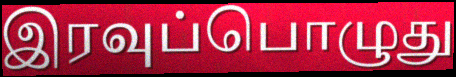
இரவுப்பொழுது